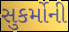
સુકર્મોની